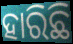
ହାରିଛି